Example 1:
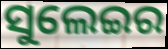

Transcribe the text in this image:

ସୁଲେଇର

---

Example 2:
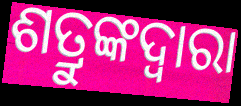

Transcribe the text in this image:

ଶତ୍ରୁଙ୍କଦ୍ୱାରା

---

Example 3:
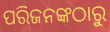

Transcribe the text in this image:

ପରିଜନଙ୍କଠାରୁ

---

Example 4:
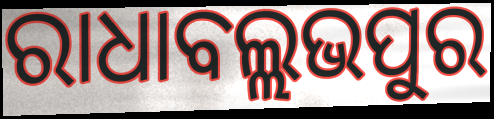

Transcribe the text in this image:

ରାଧାବଲ୍ଲଭପୁର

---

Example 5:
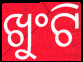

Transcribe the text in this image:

ଖୁଂଟି